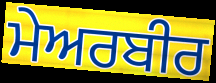
ਮੇਅਰਬੀਰ